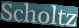
Scholtz